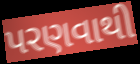
પરણવાથી